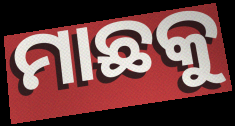
ମାଛକୁ